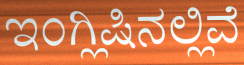
ಇಂಗ್ಲಿಷಿನಲ್ಲಿವೆ